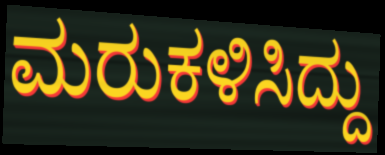
ಮರುಕಳಿಸಿದ್ದು